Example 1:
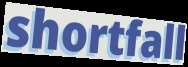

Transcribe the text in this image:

shortfall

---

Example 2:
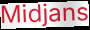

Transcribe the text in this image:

Midjans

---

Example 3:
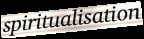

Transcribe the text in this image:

spiritualisation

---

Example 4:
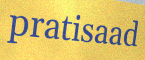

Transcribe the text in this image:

pratisaad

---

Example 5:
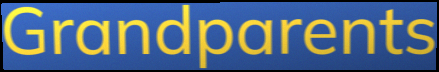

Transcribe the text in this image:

Grandparents